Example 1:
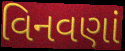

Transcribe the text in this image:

વિનવણાં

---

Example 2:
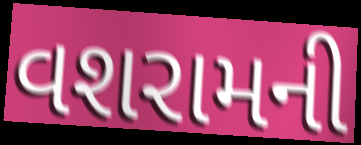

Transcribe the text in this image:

વશરામની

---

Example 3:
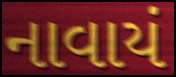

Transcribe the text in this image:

નાવાયં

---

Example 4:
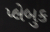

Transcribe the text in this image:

પ્લેબુક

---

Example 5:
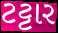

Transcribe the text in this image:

ટટ્ટાર